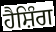
ਹੈਸ਼ਿੰਗ